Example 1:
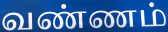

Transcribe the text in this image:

வண்ணம்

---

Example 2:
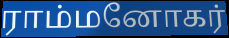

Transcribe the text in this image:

ராம்மனோகர்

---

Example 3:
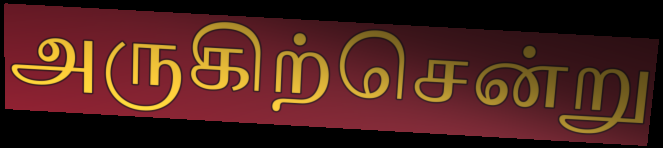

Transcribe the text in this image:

அருகிற்சென்று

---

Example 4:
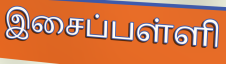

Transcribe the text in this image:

இசைப்பள்ளி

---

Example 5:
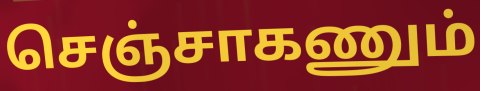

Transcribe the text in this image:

செஞ்சாகணும்